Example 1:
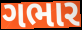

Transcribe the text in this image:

ગભાર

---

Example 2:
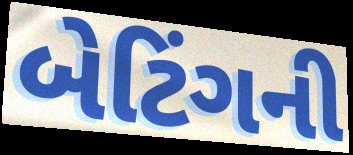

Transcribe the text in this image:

બેટિંગની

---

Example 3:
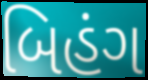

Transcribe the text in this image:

બિહંગ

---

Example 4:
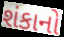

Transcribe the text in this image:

શંકાનો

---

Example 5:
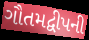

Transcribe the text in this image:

ગૌતમદ્વીપની